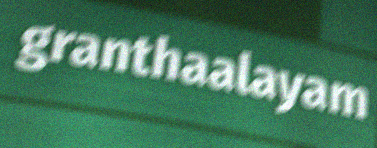
granthaalayam